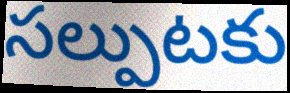
సల్పుటకు